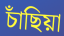
চাঁছিয়া